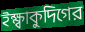
ইক্ষ্বাকুদিগের